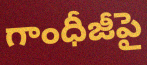
గాంధీజీపై